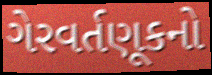
ગેરવર્તણૂકનો